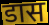
डास